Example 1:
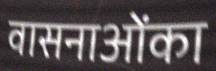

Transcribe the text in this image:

वासनाओंका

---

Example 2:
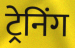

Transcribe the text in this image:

ट्रेनिंग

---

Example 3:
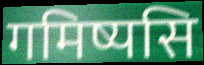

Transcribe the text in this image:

गमिष्यसि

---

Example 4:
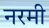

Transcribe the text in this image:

नरमी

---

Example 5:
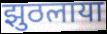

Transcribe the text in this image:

झुठलाया